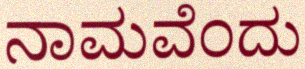
ನಾಮವೆಂದು